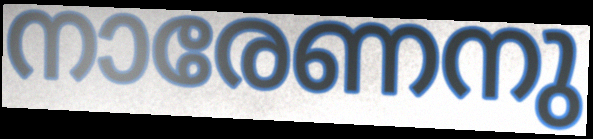
നാരേണനു